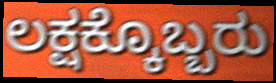
ಲಕ್ಷಕ್ಕೊಬ್ಬರು